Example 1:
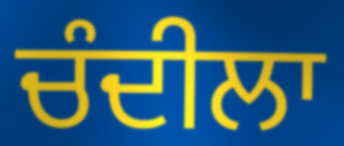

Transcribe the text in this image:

ਚੰਦੀਲਾ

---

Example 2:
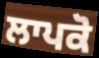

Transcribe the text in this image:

ਲਾਪਕੋ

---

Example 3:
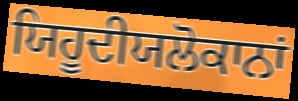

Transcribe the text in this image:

ਯਿਹੂਦੀਯਲੋਕਾਨਾਂ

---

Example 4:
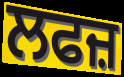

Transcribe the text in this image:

ਲਫਜ਼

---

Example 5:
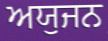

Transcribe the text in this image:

ਅਯੁਜਨ